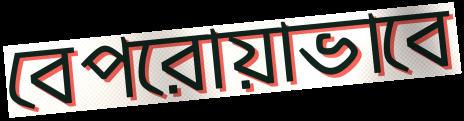
বেপরোয়াভাবে